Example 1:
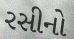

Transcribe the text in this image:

રસીનો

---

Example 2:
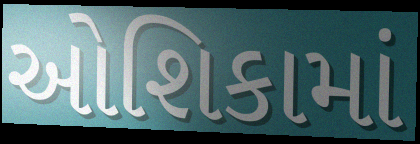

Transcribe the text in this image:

ઓશિકામાં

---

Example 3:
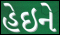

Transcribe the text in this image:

હેઇને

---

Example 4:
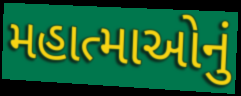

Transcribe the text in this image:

મહાત્માઓનું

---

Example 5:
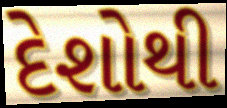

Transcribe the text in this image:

દેશોથી